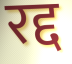
रद्द